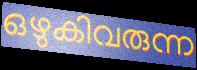
ഒഴുകിവരുന്ന